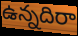
ఉన్నదిరా